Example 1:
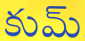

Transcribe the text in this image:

కుమ్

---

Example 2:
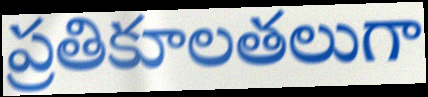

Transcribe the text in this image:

ప్రతికూలతలుగా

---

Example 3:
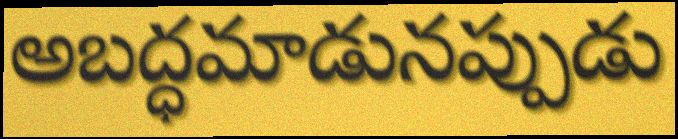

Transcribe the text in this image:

అబద్ధమాడునప్పుడు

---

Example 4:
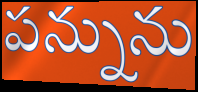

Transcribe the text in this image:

పన్నును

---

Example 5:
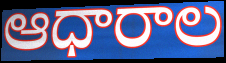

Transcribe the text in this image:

ఆధారాల